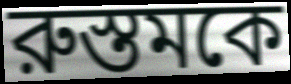
রুস্তমকে